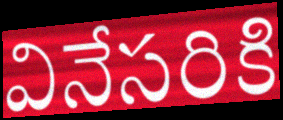
వినేసరికి